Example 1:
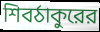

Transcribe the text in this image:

শিবঠাকুরের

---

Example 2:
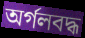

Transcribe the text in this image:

অর্গলবদ্ধ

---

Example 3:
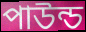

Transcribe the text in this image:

পাউন্ড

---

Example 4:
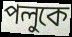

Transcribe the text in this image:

পলুকে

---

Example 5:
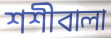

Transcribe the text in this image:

শশীবালা